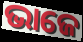
ଭାଜେ